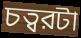
চত্বরটা